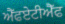
ਐੱਫਏਟੀਐੱਫ